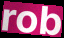
rob